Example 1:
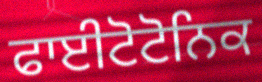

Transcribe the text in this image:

ਫਾਈਟੋਟੋਨਿਕ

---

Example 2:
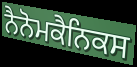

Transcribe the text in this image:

ਨੈਨੋਮਕੈਨਿਕਸ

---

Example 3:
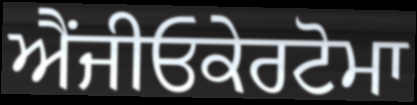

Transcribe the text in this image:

ਐਂਜੀਓਕੇਰਟੋਮਾ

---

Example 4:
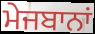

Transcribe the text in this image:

ਮੇਜਬਾਨਾਂ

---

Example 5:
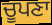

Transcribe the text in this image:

ਚੂਪਣਾ